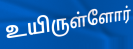
உயிருள்ளோர்